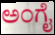
ಅಂಗೈ